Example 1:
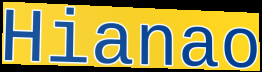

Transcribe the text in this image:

Hianao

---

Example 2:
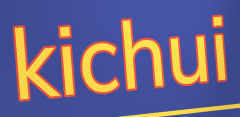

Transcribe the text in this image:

kichui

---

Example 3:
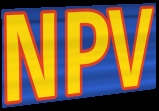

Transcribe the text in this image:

NPV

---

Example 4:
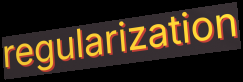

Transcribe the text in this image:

regularization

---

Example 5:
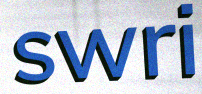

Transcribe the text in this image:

swri